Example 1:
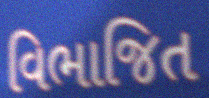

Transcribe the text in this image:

વિભાજિત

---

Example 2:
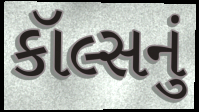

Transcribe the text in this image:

કૉલ્સનું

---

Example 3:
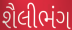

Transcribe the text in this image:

શૈલીભંગ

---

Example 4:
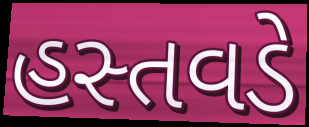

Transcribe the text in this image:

હસ્તવડે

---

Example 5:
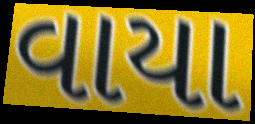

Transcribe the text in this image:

વાયા